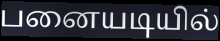
பனையடியில்